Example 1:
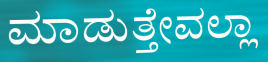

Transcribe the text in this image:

ಮಾಡುತ್ತೇವಲ್ಲಾ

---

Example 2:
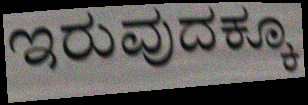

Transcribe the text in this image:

ಇರುವುದಕ್ಕೂ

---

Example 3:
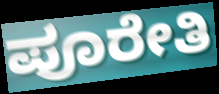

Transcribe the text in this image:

ಪೂರೇತಿ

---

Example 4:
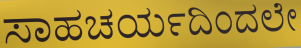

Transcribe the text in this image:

ಸಾಹಚರ್ಯದಿಂದಲೇ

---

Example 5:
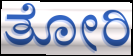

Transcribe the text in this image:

ತೋರಿ